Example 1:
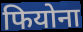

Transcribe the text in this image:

फियोना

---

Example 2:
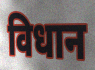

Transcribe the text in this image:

विधान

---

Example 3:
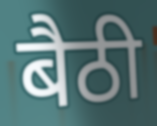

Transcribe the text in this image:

बैठी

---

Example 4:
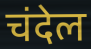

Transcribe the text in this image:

चंदेल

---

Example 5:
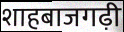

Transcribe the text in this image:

शाहबाजगढ़ी